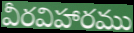
వీరవిహారము